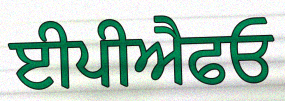
ਈਪੀਐਫਓ